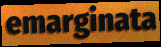
emarginata